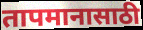
तापमानासाठी